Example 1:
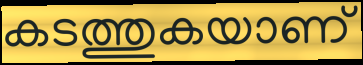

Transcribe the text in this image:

കടത്തുകയാണ്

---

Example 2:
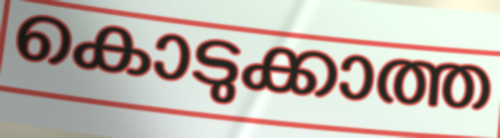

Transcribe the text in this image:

കൊടുക്കാത്ത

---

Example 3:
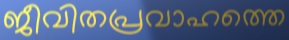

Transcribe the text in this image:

ജീവിതപ്രവാഹത്തെ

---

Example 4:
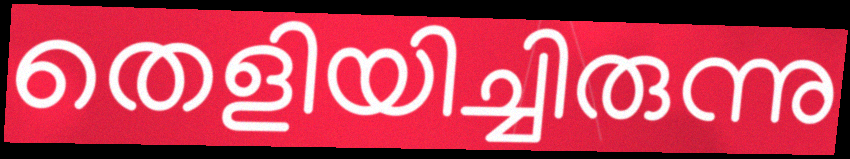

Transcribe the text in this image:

തെളിയിച്ചിരുന്നു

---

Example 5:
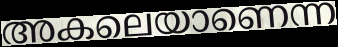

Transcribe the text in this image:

അകലെയാണെന്ന